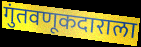
गुंतवणूकदाराला